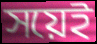
সয়েই